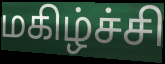
மகிழ்ச்சி